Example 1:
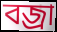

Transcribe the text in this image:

বজ্রা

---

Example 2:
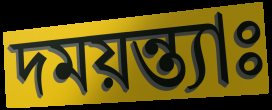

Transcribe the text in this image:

দময়ন্ত্যাঃ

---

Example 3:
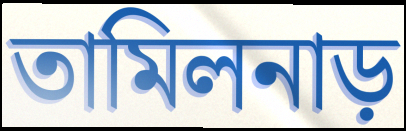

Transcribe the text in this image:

তামিলনাড়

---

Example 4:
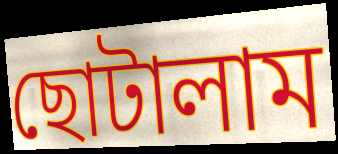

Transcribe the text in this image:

ছোটালাম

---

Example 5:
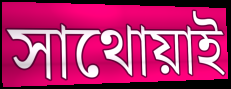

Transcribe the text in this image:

সাথোয়াই